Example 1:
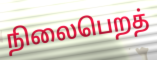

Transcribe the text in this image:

நிலைபெறத்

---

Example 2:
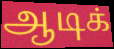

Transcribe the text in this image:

ஆடிக்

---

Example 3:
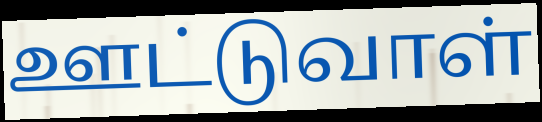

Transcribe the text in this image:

ஊட்டுவாள்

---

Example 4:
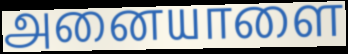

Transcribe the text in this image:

அனையாளை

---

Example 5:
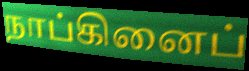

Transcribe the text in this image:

நாப்கினைப்